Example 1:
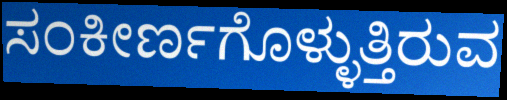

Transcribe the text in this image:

ಸಂಕೀರ್ಣಗೊಳ್ಳುತ್ತಿರುವ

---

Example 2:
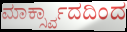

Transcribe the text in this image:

ಮಾರ್ಕ್ಸ್ವಾದದಿಂದ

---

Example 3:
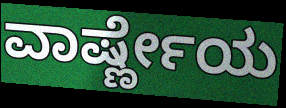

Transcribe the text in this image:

ವಾರ್ಷ್ಣೇಯ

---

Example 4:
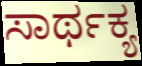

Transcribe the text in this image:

ಸಾರ್ಥಕ್ಯ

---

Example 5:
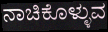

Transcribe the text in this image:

ನಾಚಿಕೊಳ್ಳುವ